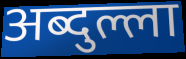
अब्दुल्ला